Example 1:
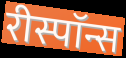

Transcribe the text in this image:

रीस्पॉन्स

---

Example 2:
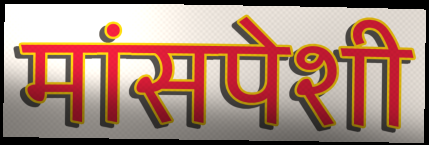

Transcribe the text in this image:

मांसपेशी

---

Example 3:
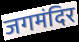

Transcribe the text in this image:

जगमंदिर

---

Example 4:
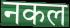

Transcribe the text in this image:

नकल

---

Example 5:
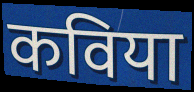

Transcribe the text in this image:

कविया